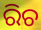
ରିଚ